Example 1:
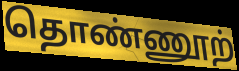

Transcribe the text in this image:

தொண்ணூற்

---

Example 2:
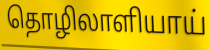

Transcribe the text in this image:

தொழிலாளியாய்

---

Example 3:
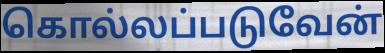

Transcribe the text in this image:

கொல்லப்படுவேன்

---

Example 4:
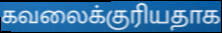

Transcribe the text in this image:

கவலைக்குரியதாக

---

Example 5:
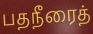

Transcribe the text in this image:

பதநீரைத்